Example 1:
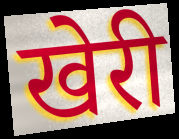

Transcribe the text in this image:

खेरी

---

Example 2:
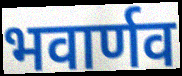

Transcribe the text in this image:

भवार्णव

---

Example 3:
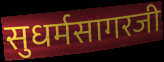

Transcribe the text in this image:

सुधर्मसागरजी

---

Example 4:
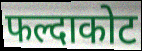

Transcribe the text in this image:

फल्दाकोट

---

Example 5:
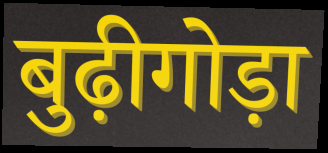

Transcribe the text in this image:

बुढ़ीगोड़ा